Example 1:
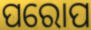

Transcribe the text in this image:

ପରୋପ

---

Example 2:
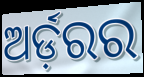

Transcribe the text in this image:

ଅର୍ଡ଼ରର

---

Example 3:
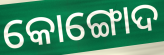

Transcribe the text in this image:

କୋଙ୍ଗୋଦ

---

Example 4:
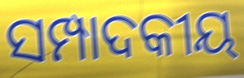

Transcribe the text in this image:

ସମ୍ପାଦକୀୟ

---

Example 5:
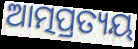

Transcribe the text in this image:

ଆତ୍ମପ୍ରତ୍ୟୟ